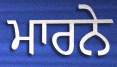
ਮਾਰਨੇ